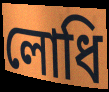
লোধি